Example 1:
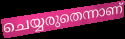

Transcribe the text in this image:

ചെയ്യരുതെന്നാണ്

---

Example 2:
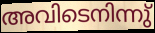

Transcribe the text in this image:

അവിടെനിന്നു്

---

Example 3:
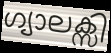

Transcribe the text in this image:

ഗ്യാലക്സി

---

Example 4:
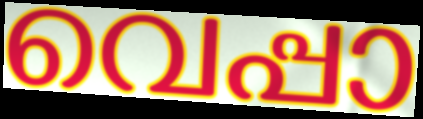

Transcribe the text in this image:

വെപ്പാ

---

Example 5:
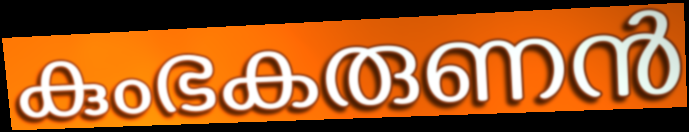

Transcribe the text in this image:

കുംഭകരുണൻ